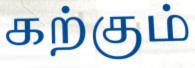
கற்கும்